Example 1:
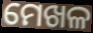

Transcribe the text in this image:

ମେଖଳ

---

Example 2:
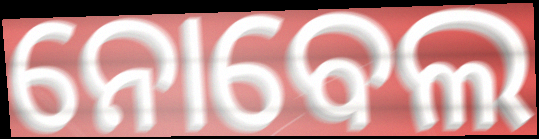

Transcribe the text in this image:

ନୋବେଲ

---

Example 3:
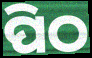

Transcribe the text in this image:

ପିଠ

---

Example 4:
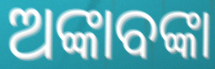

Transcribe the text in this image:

ଅଙ୍କାବଙ୍କା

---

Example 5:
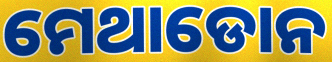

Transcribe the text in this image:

ମେଥାଡୋନ